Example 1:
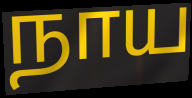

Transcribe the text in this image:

நாய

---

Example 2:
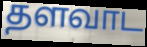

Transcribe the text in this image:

தளவாட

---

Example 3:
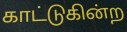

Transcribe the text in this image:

காட்டுகின்ற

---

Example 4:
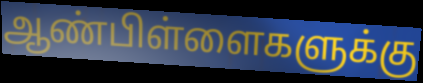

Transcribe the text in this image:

ஆண்பிள்ளைகளுக்கு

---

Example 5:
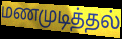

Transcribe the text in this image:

மணமுடித்தல்